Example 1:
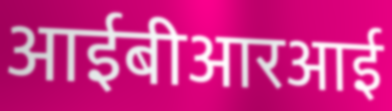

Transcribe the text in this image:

आईबीआरआई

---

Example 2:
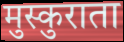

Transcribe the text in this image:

मुस्कुराता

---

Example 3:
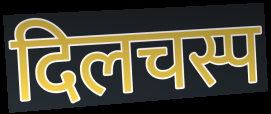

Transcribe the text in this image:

दिलचस्प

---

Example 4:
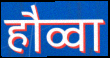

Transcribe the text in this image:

हौव्वा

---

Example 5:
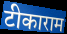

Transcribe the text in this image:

टीकाराम